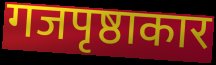
गजपृष्ठाकार